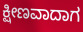
ಕ್ಷೀಣವಾದಾಗ